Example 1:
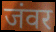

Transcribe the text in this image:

जंवर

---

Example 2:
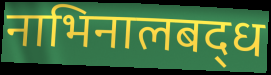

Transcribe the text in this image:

नाभिनालबद्ध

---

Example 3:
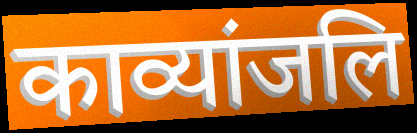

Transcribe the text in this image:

काव्यांजलि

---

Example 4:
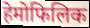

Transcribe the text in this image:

हेमोफिलिक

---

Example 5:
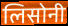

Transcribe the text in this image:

लिसोनी